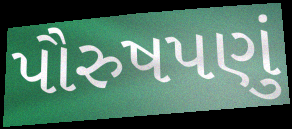
પૌરુષપણું